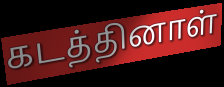
கடத்தினாள்